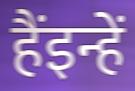
हैंइन्हें